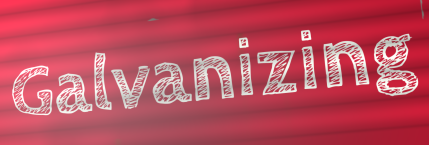
Galvanizing